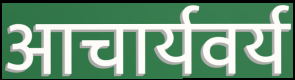
आचार्यवर्य